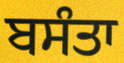
ਬਸੰਤਾ